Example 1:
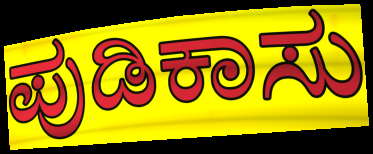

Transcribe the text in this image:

ಪುಡಿಕಾಸು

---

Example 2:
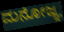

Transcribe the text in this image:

ಮನೋಜ್ಞ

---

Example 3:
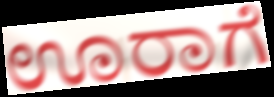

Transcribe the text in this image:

ಊರಾಗೆ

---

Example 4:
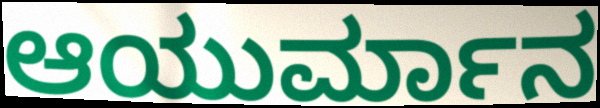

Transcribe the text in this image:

ಆಯುರ್ಮಾನ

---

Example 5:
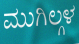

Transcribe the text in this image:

ಮುಗಿಲ್ಗಳ